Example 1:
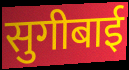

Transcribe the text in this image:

सुगीबाई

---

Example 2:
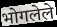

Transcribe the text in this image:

भोगलेले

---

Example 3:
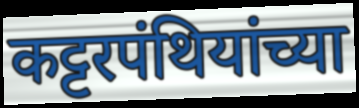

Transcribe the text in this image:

कट्टरपंथियांच्या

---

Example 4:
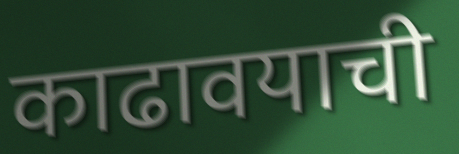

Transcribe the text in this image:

काढावयाची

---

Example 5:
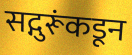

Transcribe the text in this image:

सद्गुरूंकडून